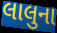
લાલુના